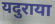
यदुराया